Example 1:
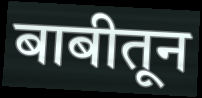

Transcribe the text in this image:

बाबीतून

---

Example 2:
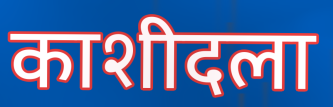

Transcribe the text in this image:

काशीदला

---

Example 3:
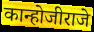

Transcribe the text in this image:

कान्होजीराजे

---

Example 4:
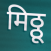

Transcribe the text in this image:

मिठ्ठू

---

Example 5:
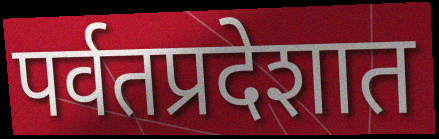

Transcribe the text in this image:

पर्वतप्रदेशात